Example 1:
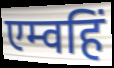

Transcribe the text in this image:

एम्वहिं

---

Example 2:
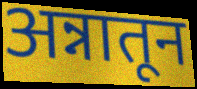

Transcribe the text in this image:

अन्नातून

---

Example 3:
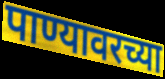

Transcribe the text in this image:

पाण्यावरच्या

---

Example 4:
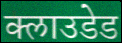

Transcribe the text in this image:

क्लाउडेड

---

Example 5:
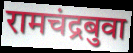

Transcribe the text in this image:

रामचंद्रबुवा